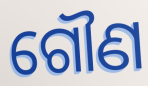
ଗୌଣ